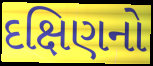
દક્ષિણનો